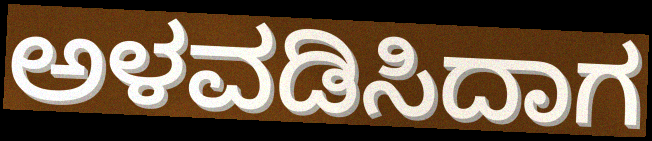
ಅಳವಡಿಸಿದಾಗ